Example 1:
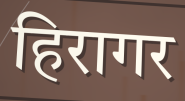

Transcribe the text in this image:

हिरागर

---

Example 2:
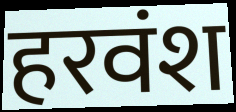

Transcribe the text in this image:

हरवंश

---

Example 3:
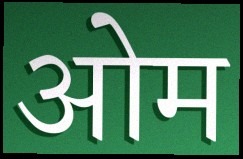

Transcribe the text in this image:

ओम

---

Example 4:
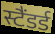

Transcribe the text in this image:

स्टैंडर्ड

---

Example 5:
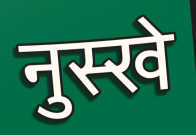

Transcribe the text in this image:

नुस्खे